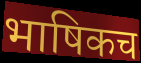
भाषिकच